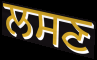
ਲਸਣ